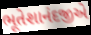
ભૂતેશાનંદજીએ